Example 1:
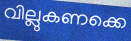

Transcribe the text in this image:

വില്ലുകണക്കെ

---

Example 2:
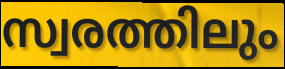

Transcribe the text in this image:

സ്വരത്തിലും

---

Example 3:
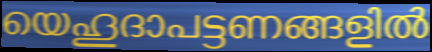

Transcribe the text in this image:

യെഹൂദാപട്ടണങ്ങളിൽ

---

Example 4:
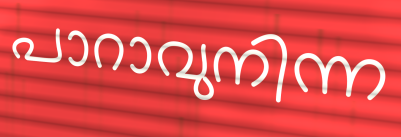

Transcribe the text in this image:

പാറാവുനിന്ന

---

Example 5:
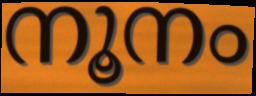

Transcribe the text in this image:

നൂനം